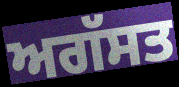
ਅਗੱਸਤ